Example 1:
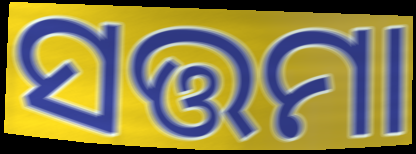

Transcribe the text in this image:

ସତ୍ତମା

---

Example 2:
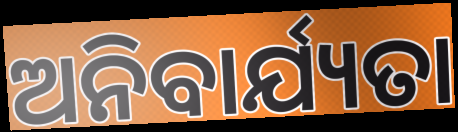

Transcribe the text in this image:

ଅନିବାର୍ଯ୍ୟତା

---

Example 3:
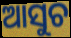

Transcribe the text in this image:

ଆସୁଚ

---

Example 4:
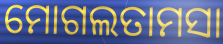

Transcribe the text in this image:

ମୋଗଲତାମସା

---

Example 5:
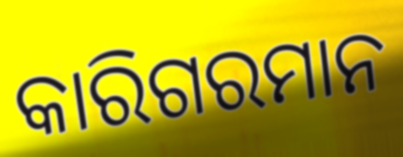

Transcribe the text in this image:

କାରିଗରମାନ